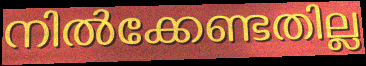
നിൽക്കേണ്ടതില്ല